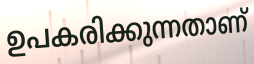
ഉപകരിക്കുന്നതാണ്